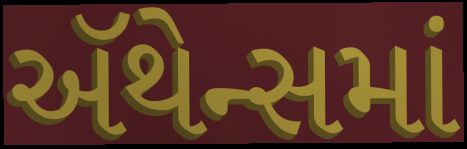
ઍથેન્સમાં